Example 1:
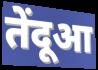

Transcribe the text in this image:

तेंदूआ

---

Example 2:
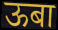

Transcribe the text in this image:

ऊबा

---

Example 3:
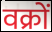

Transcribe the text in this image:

वक्रों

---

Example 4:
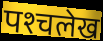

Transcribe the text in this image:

पश्चलेख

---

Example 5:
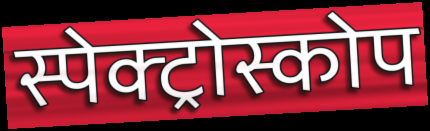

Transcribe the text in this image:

स्पेक्ट्रोस्कोप